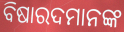
ବିଷାରଦମାନଙ୍କ